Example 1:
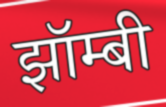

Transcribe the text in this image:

झॉम्बी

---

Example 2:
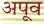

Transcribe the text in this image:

अपूव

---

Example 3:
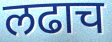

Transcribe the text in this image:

लढाच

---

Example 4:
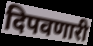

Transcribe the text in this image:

दिपवणारी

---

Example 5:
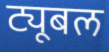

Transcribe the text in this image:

ट्यूबल